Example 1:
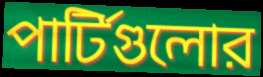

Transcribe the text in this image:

পার্টিগুলোর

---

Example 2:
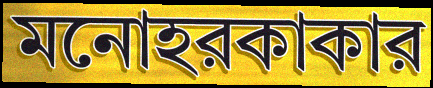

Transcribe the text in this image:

মনোহরকাকার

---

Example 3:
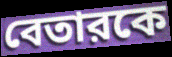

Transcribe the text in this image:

বেতারকে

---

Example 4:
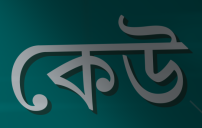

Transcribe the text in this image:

কেউ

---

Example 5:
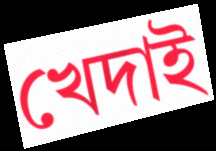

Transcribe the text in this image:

খেদাই